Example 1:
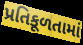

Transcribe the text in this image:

પ્રતિકૂળતામાં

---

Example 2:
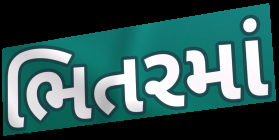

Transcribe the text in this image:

ભિતરમાં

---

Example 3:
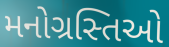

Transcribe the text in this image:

મનોગ્રસ્તિઓ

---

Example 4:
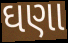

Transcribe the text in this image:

ઘણા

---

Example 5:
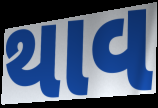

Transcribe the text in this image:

થાવ